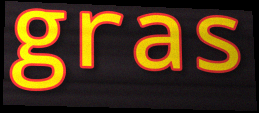
gras